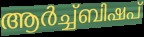
ആർച്ച്ബിഷപ്